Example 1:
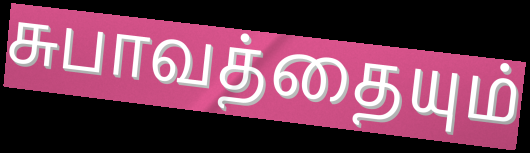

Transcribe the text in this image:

சுபாவத்தையும்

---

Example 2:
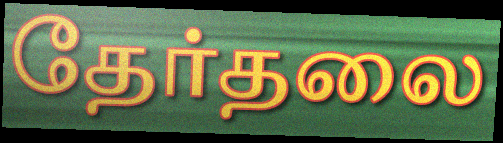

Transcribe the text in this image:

தேர்தலை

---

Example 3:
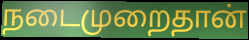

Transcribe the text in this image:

நடைமுறைதான்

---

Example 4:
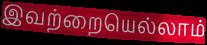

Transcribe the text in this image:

இவற்றையெல்லாம்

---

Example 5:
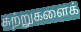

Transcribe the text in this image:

சுற்றுகளைக்